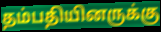
தம்பதியினருக்கு